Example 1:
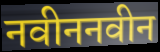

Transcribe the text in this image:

नवीननवीन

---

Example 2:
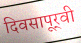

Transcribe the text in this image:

दिवसापूर्वी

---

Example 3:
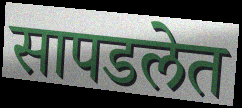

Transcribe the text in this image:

सापडलेत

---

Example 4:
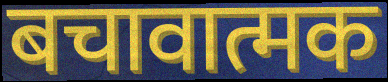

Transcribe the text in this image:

बचावात्मक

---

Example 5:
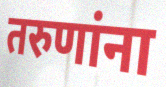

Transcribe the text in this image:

तरुणांना